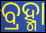
ବ୍ରହ୍ମା